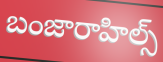
బంజారాహిల్స్